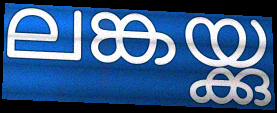
ലങ്കയ്ക്കു